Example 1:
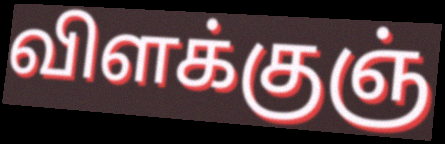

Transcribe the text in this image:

விளக்குஞ்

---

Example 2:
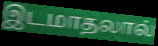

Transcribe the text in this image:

இடமாதலால்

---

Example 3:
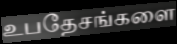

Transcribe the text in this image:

உபதேசங்களை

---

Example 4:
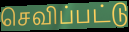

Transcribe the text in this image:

செவிப்பட்டு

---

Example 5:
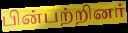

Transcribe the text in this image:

பின்பற்றினர்